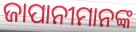
ଜାପାନୀମାନଙ୍କ